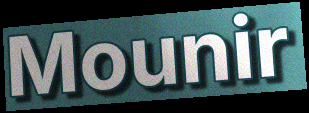
Mounir